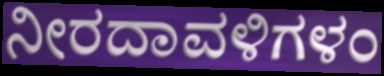
ನೀರದಾವಳಿಗಳಂ